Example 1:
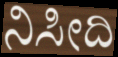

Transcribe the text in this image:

ನಿಸೀದಿ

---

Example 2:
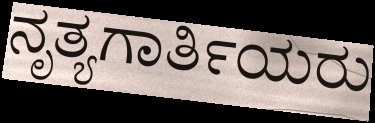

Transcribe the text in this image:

ನೃತ್ಯಗಾರ್ತಿಯರು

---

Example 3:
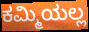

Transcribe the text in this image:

ಕಮ್ಮಿಯಲ್ಲ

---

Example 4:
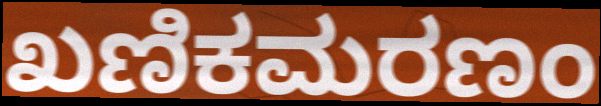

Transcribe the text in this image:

ಖಣಿಕಮರಣಂ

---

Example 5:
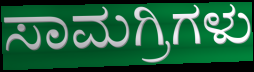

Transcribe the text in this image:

ಸಾಮಗ್ರಿಗಳು